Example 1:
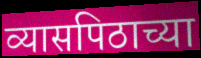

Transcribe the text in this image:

व्यासपिठाच्या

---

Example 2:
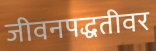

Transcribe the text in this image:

जीवनपद्धतीवर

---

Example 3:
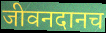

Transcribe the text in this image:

जीवनदानच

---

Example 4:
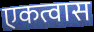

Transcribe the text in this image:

एकत्वास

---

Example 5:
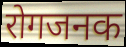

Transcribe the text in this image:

रोगजनक